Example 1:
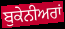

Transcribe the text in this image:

ਬੁਕੇਨੀਅਰਾਂ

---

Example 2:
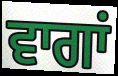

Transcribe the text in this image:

ਵਾਗਾਂ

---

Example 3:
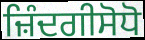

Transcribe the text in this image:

ਜ਼ਿੰਦਗੀਸੋਧੋ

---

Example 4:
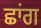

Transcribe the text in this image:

ਛਾਂਗ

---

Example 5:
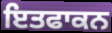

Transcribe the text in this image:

ਇਤਫਾਕਨ